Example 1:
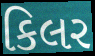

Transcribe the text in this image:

કિલર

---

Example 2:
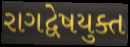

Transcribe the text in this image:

રાગદ્વેષયુક્ત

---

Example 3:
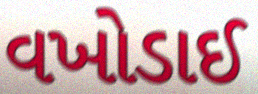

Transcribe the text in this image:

વખોડાઈ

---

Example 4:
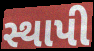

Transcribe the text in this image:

સ્થાપી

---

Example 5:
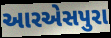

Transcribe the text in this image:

આરએસપુરા